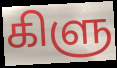
கிளு